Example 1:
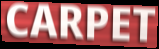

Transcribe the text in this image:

CARPET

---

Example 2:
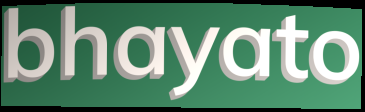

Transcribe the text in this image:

bhayato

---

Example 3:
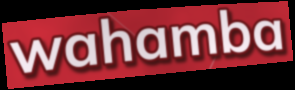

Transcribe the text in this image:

wahamba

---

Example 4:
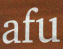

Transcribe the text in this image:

afu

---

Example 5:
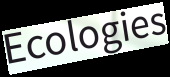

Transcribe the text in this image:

Ecologies